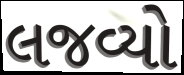
લજવ્યો